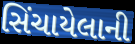
સિંચાયેલાની